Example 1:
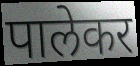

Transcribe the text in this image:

पालेकर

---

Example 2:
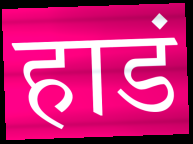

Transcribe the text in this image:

हाडं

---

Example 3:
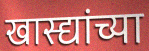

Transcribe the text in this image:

खास्द्यांच्या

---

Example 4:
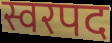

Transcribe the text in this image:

स्वरपद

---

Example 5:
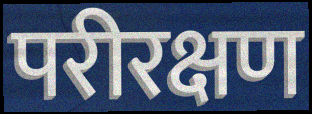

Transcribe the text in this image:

परीरक्षण